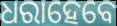
ଧରାହେବେ